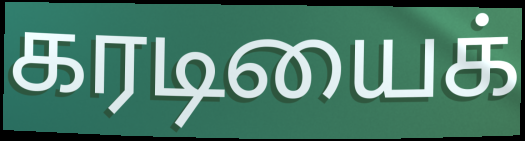
கரடியைக்